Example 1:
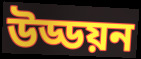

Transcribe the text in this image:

উড্ডয়ন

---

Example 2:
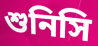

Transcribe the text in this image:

শুনিসি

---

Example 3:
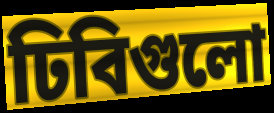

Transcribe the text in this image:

ঢিবিগুলো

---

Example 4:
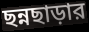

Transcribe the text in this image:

ছন্নছাড়ার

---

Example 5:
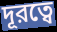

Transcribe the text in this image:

দূরত্বে